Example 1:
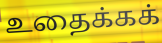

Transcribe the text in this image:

உதைக்கக்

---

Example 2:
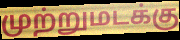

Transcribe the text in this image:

முற்றுமடக்கு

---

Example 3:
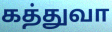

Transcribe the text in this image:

கத்துவா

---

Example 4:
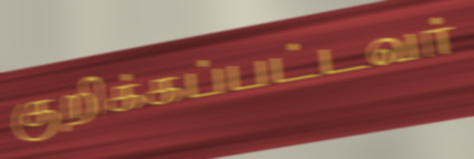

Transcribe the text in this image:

குறிக்கப்பட்டவர்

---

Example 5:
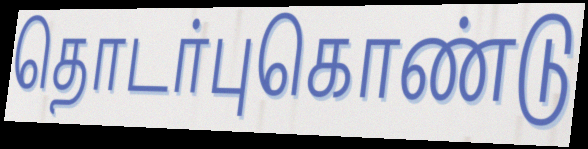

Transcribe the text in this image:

தொடர்புகொண்டு